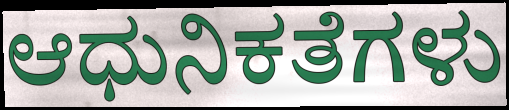
ಆಧುನಿಕತೆಗಳು